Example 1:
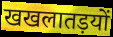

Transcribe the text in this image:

खखलातड़यों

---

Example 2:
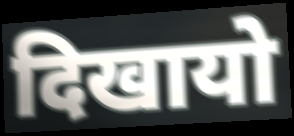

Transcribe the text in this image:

दिखायो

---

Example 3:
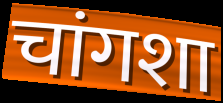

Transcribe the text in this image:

चांगशा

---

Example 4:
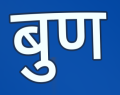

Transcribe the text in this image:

बुण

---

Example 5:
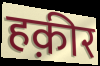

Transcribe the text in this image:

हक़ीर